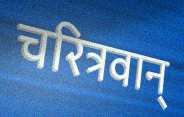
चरित्रवान्